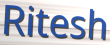
Ritesh